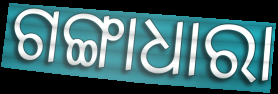
ଗଙ୍ଗାଧାରା